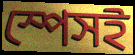
স্পেসই